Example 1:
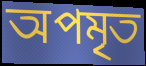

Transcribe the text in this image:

অপমৃত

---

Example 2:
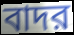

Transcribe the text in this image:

বাদর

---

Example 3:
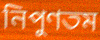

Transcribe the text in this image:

নিপুণতম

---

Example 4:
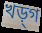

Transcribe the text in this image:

খড়্‌গ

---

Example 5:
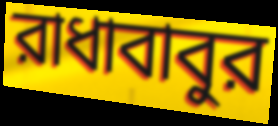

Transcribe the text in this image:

রাধাবাবুর